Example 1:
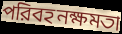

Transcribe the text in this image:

পরিবহনক্ষমতা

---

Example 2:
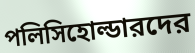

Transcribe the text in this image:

পলিসিহোল্ডারদের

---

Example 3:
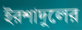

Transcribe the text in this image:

ইরশাদুলের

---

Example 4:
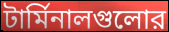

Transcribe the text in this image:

টার্মিনালগুলোর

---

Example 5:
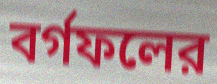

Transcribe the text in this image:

বর্গফলের